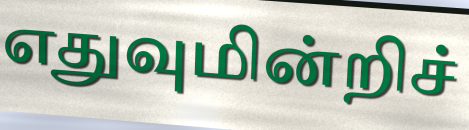
எதுவுமின்றிச்